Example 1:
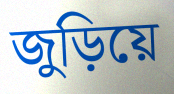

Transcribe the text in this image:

জুড়িয়ে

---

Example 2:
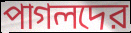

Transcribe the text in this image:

পাগলদের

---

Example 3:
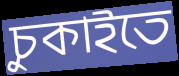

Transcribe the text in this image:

চুকাইতে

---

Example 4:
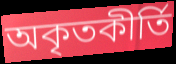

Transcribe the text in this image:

অকৃতকীর্তি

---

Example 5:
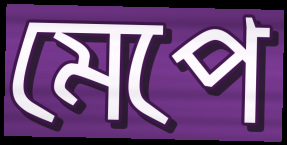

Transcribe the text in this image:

মেপে